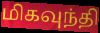
மிகவுந்தி